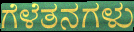
ಗೆಳೆತನಗಳು